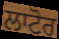
ਲਾਟੋਰ